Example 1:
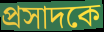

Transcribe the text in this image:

প্রসাদকে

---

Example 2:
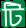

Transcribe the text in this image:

টি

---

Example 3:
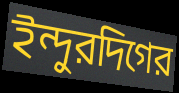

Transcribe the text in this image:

ইন্দুরদিগের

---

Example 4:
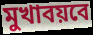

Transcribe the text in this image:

মুখাবয়বে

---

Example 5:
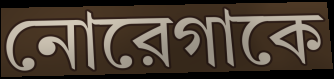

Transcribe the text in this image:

নোরেগাকে